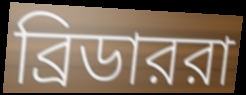
ব্রিডাররা